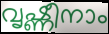
വൃഷ്ണീനാം